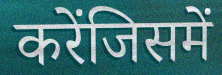
करेंजिसमें